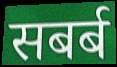
सबर्ब